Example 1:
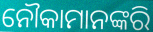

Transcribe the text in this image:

ନୌକାମାନଙ୍କରି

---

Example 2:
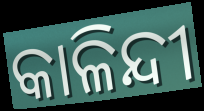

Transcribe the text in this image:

କାଳିନ୍ଦୀ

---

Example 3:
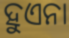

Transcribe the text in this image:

ହୁଏନା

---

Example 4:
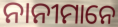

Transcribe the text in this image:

ନାନୀମାନେ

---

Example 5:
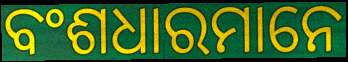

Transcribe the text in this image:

ବଂଶଧାରମାନେ